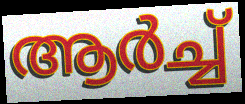
ആർച്ച്